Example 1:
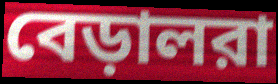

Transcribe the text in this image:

বেড়ালরা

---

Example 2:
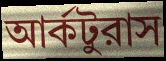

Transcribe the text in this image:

আর্কটুরাস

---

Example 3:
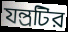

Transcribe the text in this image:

যন্ত্রটির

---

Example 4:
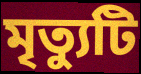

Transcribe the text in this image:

মৃত্যুটি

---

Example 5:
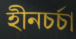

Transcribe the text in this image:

হীনচর্চা